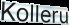
Kolleru